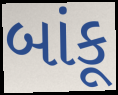
બાંકૂ